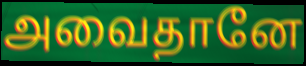
அவைதானே